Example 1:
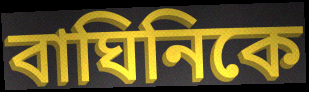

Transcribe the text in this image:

বাঘিনিকে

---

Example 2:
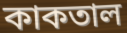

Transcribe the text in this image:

কাকতাল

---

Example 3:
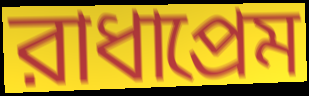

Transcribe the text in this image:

রাধাপ্রেম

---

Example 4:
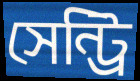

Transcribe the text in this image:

সেন্ট্রি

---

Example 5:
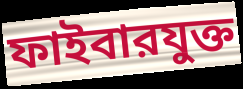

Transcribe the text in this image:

ফাইবারযুক্ত